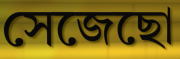
সেজেছো